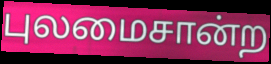
புலமைசான்ற